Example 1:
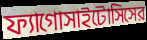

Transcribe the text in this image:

ফ্যাগোসাইটোসিসের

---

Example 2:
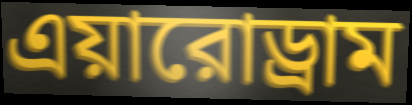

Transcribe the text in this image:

এয়ারোড্রাম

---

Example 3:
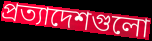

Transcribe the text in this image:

প্রত্যাদেশগুলো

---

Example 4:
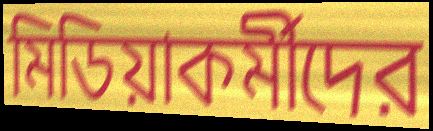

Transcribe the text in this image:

মিডিয়াকর্মীদের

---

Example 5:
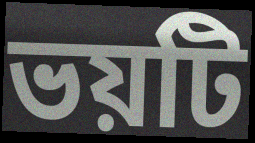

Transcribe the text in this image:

ভয়টি